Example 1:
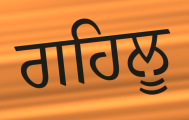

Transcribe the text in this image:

ਗਹਿਲੂ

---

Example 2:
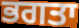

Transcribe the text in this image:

ਭਗਤਾ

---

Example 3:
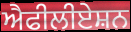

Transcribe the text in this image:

ਐਫੀਲੀਏਸ਼ਨ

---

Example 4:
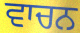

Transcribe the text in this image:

ਵਾਚਨ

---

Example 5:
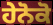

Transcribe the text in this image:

ਹੇਨੋਕੋ